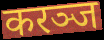
करञ्ज